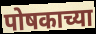
पोषकाच्या